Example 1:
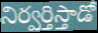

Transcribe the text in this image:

నిర్వర్తిస్తాడో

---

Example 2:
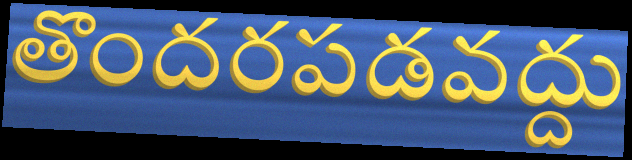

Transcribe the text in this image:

తొందరపడవద్దు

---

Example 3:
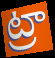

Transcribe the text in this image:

ట్రా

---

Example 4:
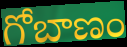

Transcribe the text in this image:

గోబాణం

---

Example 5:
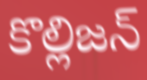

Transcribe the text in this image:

కొల్లిజన్